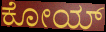
ಕೋಯ್